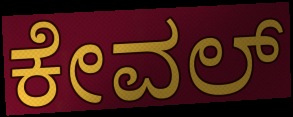
ಕೇವಲ್